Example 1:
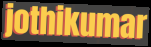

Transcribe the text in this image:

jothikumar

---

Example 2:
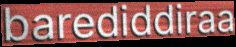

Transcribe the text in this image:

barediddiraa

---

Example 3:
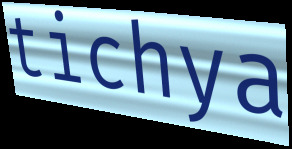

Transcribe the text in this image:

tichya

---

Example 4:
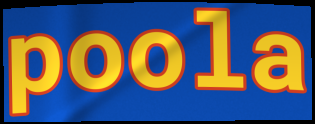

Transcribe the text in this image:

poola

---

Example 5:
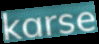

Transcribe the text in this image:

karse